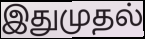
இதுமுதல்